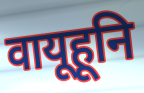
वायूहूनि